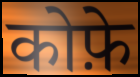
कोफ़े